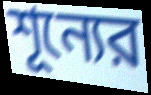
শূন্যের